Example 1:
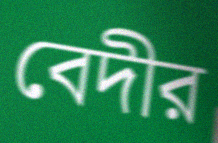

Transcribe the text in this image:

বেদীর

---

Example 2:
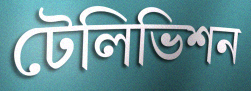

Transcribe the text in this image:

টেলিভিশন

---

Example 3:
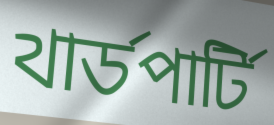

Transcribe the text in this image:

থার্ডপার্টি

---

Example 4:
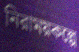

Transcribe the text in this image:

নিরাময়কল্পে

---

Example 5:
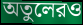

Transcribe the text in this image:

অতুলেরও